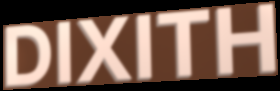
DIXITH